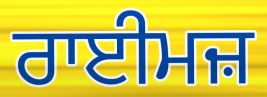
ਰਾਈਮਜ਼